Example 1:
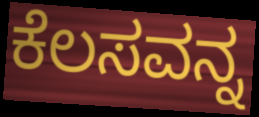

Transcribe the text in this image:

ಕೆಲಸವನ್ನ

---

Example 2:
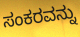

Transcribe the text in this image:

ಸಂಕರವನ್ನು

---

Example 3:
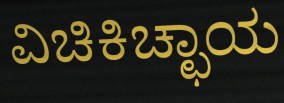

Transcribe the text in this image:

ವಿಚಿಕಿಚ್ಛಾಯ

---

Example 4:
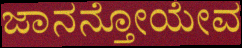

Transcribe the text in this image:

ಜಾನನ್ತೋಯೇವ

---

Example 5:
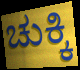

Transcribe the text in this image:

ಚುಕ್ಕಿ